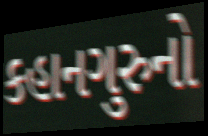
કહાનગુરુનો